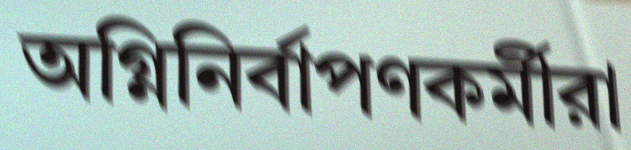
অগ্নিনির্বাপণকর্মীরা